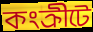
কংক্রীটে